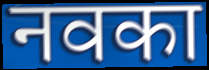
नवका